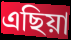
এছিয়া